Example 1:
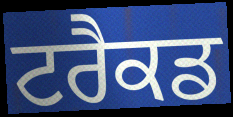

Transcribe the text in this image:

ਟਰੈਕਡ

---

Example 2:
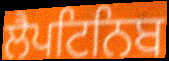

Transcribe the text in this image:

ਲੈਪਟਿਨਿਬ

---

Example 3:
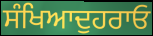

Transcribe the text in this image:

ਸੰਖਿਆਦੁਹਰਾਓ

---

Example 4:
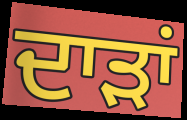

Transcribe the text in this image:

ਦਾੜਾਂ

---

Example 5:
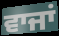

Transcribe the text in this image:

ਵਾਜਾਂ